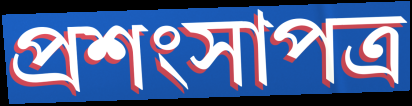
প্ৰশংসাপত্ৰ